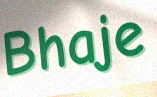
Bhaje